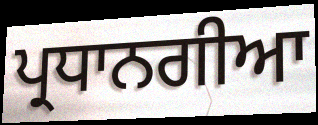
ਪ੍ਰਧਾਨਗੀਆ